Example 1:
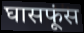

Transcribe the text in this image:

घासफूंस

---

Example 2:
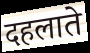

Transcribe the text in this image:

दहलाते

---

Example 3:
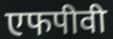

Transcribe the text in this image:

एफपीवी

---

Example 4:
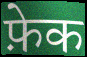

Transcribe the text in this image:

फ़ेक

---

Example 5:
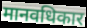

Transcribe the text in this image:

मानवधिकार